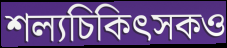
শল্যচিকিৎসকও